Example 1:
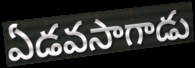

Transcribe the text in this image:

ఏడవసాగాడు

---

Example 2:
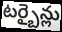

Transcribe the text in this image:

టర్బైన్లు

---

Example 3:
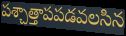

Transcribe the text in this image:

పశ్చాత్తాపపడవలసిన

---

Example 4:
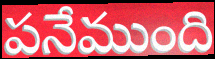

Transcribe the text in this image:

పనేముంది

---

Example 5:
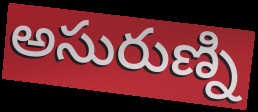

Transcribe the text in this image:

అసురుణ్ని